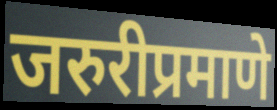
जरुरीप्रमाणे